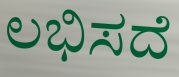
ಲಭಿಸದೆ